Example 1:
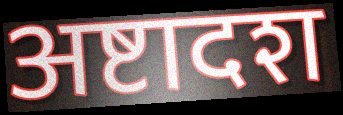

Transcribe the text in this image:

अष्टादश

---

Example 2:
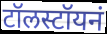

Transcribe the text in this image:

टॉलस्टॉयनं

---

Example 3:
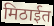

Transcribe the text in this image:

मिठाईत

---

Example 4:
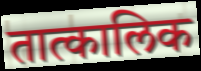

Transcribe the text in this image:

तात्कालिक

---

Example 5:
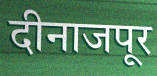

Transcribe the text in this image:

दीनाजपूर